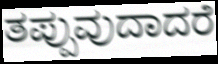
ತಪ್ಪುವುದಾದರೆ